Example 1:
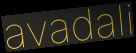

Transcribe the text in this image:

avadali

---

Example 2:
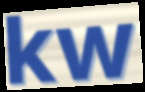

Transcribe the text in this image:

kw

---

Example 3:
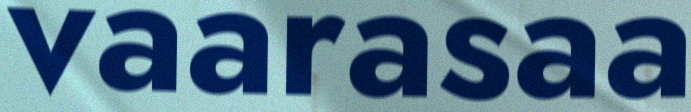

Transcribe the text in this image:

vaarasaa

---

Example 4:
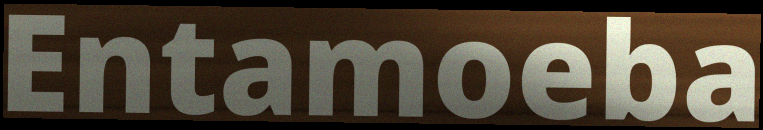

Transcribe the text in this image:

Entamoeba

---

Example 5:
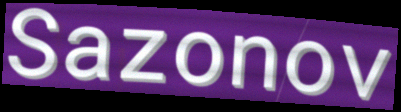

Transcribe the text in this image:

Sazonov